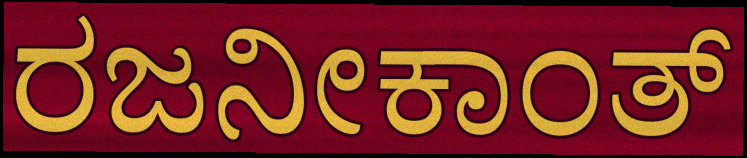
ರಜನೀಕಾಂತ್